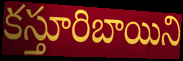
కస్తూరిబాయిని